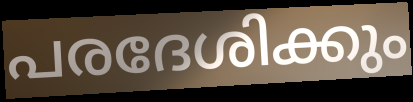
പരദേശിക്കും